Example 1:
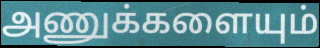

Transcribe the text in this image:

அணுக்களையும்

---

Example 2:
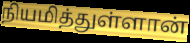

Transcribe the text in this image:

நியமித்துள்ளான்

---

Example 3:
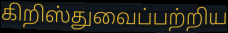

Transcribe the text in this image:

கிறிஸ்துவைப்பற்றிய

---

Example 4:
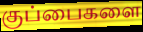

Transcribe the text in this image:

குப்பைகளை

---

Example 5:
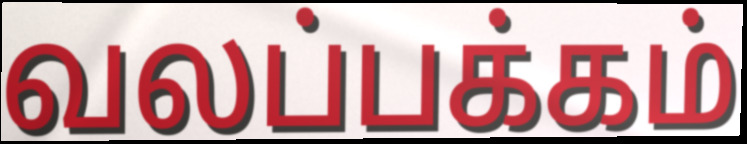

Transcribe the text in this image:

வலப்பக்கம்